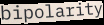
bipolarity